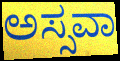
ಅಸ್ಸವಾ